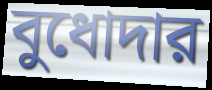
বুধোদার